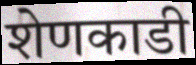
शेणकाडी